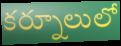
కర్నూలులో